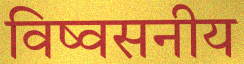
विष्वसनीय